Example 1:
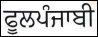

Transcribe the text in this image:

ਫੂਲਪੰਜਾਬੀ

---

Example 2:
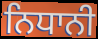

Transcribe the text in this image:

ਨਿਧਾਨੀ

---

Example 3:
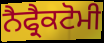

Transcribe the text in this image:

ਨੈਫ੍ਰੈਕਟੋਮੀ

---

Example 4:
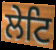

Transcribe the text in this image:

ਲੇਟਿ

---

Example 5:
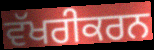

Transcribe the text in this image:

ਵੱਖਰੀਕਰਨ